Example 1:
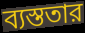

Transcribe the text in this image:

ব্যস্ততার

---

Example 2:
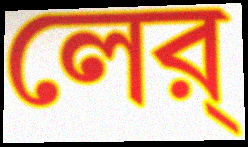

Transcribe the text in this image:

লের্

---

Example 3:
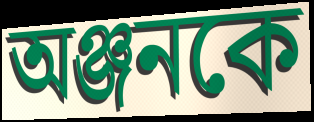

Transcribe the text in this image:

অঞ্জনকে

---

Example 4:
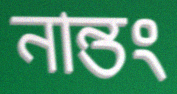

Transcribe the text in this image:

নান্তং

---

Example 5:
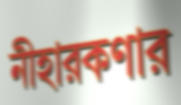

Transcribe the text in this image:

নীহারকণার